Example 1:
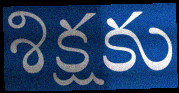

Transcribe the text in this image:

శిక్షకు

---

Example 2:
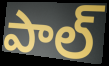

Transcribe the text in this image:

పాల్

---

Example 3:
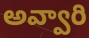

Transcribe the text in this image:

అవ్వారి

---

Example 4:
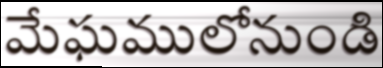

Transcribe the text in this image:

మేఘములోనుండి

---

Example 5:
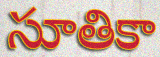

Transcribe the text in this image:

సూతికా